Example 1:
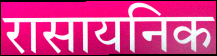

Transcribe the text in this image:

रासायनिक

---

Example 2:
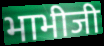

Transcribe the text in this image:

भाभीजी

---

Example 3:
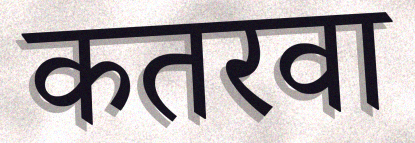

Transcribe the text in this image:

कतरवा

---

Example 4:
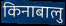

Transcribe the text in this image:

किनाबालु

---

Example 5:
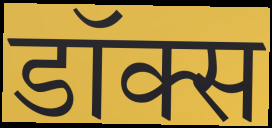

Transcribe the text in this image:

डॉक्स